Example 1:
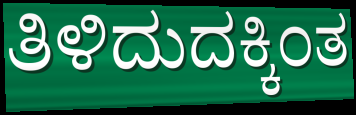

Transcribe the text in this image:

ತಿಳಿದುದಕ್ಕಿಂತ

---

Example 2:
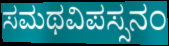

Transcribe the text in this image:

ಸಮಥವಿಪಸ್ಸನಂ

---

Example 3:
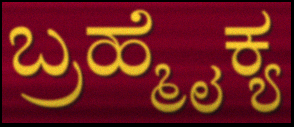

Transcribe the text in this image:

ಬ್ರಹ್ಮೈಕ್ಯ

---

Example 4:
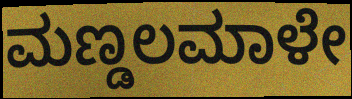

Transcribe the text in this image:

ಮಣ್ಡಲಮಾಳೇ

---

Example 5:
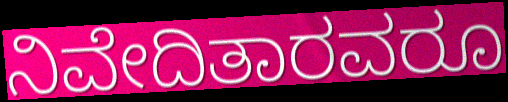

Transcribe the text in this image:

ನಿವೇದಿತಾರವರೂ